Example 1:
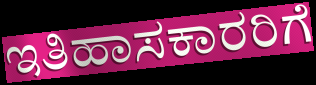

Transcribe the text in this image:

ಇತಿಹಾಸಕಾರರಿಗೆ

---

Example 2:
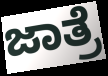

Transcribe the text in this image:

ಜಾತ್ರೆ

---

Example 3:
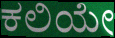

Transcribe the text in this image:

ಕಲಿಯೇ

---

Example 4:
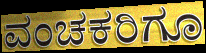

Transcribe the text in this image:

ವಂಚಕರಿಗೂ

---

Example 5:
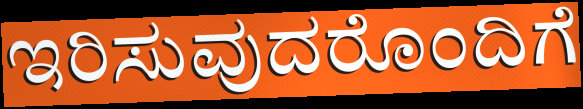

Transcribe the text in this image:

ಇರಿಸುವುದರೊಂದಿಗೆ